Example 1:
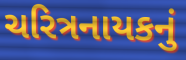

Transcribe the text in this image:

ચરિત્રનાયકનું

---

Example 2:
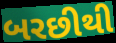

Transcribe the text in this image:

બરછીથી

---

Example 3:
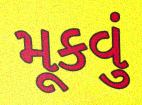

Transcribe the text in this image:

મૂકવું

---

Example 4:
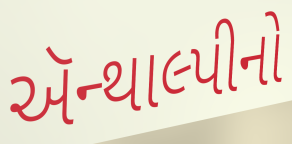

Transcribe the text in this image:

ઍન્થાલ્પીનો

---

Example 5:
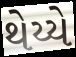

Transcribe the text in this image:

થેય્યે